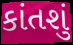
કાંતશું